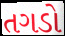
તગડો